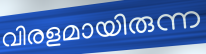
വിരളമായിരുന്ന